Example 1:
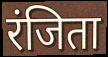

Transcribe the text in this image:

रंजिता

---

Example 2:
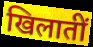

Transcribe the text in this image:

खिलातीं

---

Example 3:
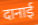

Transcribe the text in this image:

दानाई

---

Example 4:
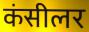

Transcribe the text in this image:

कंसीलर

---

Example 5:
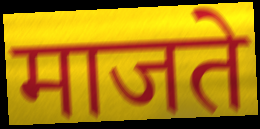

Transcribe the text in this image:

माजते